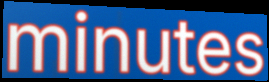
minutes